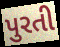
પુરતી